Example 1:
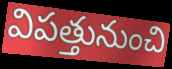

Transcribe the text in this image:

విపత్తునుంచి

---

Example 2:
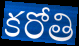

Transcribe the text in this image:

కరోతి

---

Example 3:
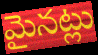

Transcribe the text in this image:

మైనట్లు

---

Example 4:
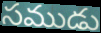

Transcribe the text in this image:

సముడు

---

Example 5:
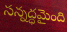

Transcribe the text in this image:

సన్నద్ధమైంది